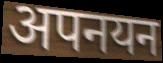
अपनयन